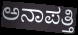
ಅನಾಪತ್ತಿ